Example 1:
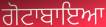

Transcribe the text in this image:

ਗੋਟਾਬਾਇਆ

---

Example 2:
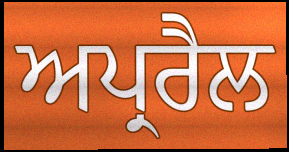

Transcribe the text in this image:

ਅਪ੍ਰਰੈਲ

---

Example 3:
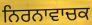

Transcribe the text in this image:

ਨਿਰਨਾਵਾਚਕ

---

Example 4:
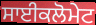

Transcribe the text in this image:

ਸਾਈਕਲੋਮੇਟ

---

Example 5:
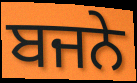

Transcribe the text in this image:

ਬਜਨੇ